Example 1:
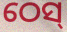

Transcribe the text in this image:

ଠେସ୍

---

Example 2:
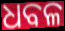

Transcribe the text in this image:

ଧବଳ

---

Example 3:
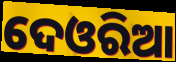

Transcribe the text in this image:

ଦେଓରିଆ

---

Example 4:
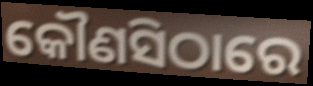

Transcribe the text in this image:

କୌଣସିଠାରେ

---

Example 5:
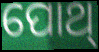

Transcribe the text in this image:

ପୋଥ୍